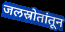
जलस्रोतांतून